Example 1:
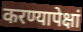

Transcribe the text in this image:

करण्यापेक्षां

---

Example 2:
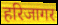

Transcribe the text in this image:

हरिजागर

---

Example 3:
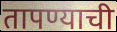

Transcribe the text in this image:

तापण्याची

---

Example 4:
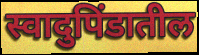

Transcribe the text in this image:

स्वादुपिंडातील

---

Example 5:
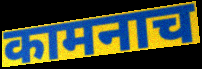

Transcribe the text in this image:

कामनाच